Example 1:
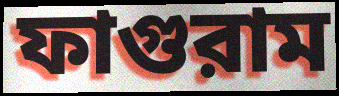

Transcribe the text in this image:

ফাগুরাম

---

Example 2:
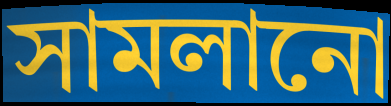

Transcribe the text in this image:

সামলানো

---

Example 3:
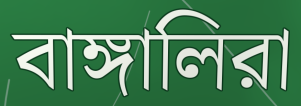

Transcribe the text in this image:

বাঙ্গালিরা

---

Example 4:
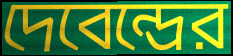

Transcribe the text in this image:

দেবেন্দ্রের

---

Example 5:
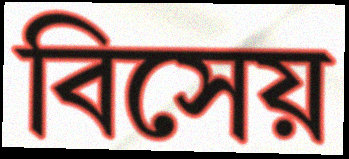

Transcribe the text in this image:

বিসেয়